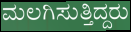
ಮಲಗಿಸುತ್ತಿದ್ದರು